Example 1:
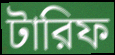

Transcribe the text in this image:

টারিফ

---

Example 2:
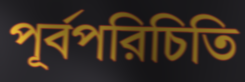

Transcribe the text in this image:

পূর্বপরিচিতি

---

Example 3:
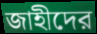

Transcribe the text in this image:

জাহীদের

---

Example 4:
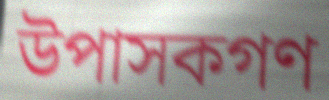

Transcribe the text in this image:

উপাসকগণ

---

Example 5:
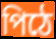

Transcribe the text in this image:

পিঠে